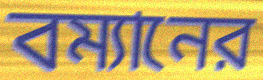
বম্যানের